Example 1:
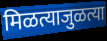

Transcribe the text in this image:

मिळत्याजुळत्या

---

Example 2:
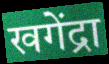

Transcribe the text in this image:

खगेंद्रा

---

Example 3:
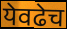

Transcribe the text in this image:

येवढेच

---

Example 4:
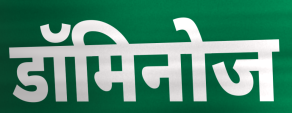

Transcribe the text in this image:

डॉमिनोज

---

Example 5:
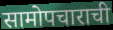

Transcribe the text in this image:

सामोपचाराची